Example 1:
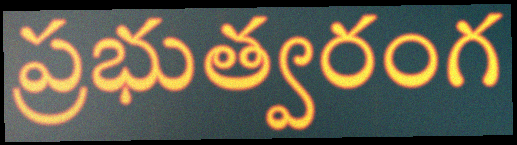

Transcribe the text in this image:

ప్రభుత్వరంగ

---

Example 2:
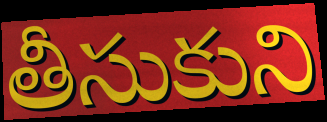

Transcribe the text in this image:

తీసుకుని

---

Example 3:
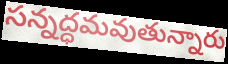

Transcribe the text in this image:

సన్నద్ధమవుతున్నారు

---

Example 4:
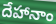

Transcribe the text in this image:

దేహానాం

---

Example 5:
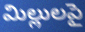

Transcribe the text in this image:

మిల్లులపై